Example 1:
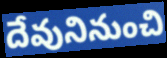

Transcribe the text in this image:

దేవునినుంచి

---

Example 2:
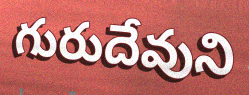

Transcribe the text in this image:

గురుదేవుని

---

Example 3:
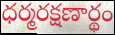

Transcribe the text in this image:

ధర్మరక్షణార్థం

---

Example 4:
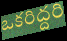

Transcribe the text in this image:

ఒకరిద్దరి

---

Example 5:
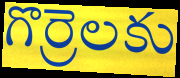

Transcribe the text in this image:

గొర్రెలకు